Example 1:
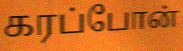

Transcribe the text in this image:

கரப்போன்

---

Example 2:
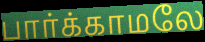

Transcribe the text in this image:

பார்க்காமலே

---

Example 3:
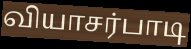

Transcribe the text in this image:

வியாசர்பாடி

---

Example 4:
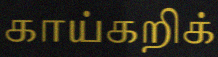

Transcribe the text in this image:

காய்கறிக்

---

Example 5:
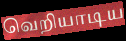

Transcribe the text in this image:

வெறியாடிய